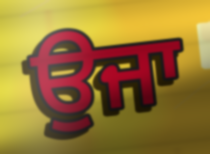
ਉਜਾ